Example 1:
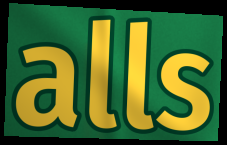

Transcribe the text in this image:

alls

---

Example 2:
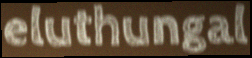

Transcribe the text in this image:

eluthungal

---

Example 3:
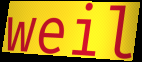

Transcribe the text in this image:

weil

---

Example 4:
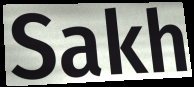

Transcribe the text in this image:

Sakh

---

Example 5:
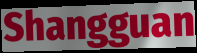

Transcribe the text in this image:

Shangguan